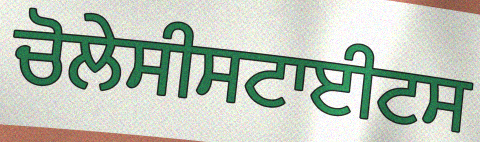
ਚੋਲੇਸੀਸਟਾਈਟਸ